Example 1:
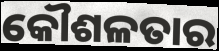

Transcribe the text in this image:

କୌଶଳତାର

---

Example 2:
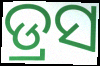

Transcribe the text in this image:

ଡ୍ରସ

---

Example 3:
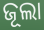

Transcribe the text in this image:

ଜୂଲା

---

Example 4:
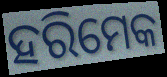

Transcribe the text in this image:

ହରିମେକ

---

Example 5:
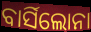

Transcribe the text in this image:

ବାର୍ସିଲୋନା